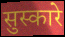
सुस्कारे